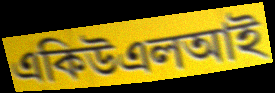
একিউএলআই